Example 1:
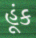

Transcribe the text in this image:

હૂંક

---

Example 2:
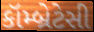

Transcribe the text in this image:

કૉમ્બ્રેટેસી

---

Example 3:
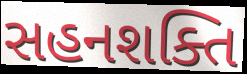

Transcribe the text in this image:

સહનશક્તિ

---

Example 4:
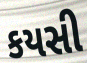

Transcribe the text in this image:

કયસી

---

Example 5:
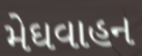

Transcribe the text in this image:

મેઘવાહન